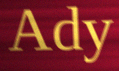
Ady